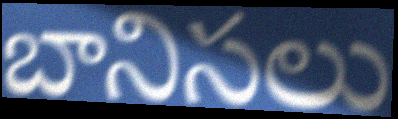
బానిసలు